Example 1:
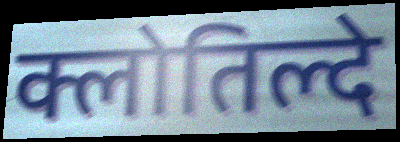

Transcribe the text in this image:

क्लोतिल्दे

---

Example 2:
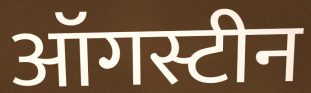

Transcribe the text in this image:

ऑगस्टीन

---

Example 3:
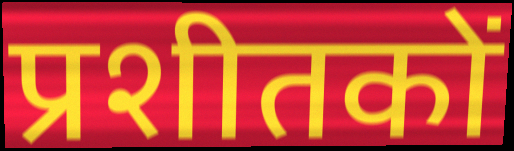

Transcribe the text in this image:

प्रशीतकों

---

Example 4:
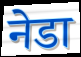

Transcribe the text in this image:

नेडा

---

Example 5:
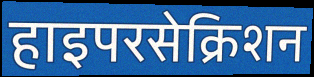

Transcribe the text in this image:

हाइपरसेक्रिशन